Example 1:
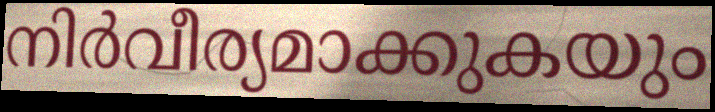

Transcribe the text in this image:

നിർവീര്യമാക്കുകയും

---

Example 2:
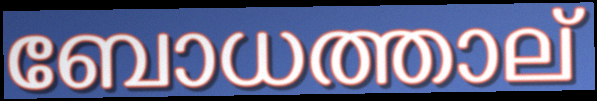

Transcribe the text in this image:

ബോധത്താല്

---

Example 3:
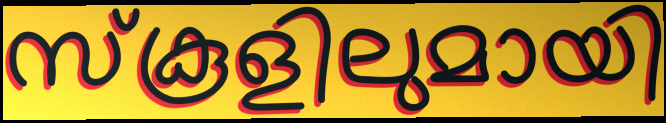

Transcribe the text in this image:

സ്കൂളിലുമായി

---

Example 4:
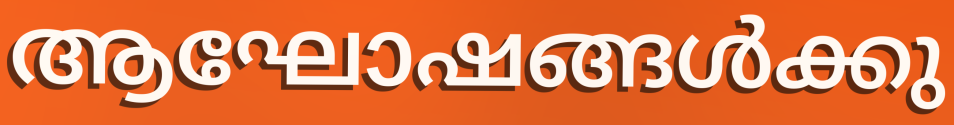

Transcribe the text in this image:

ആഘോഷങ്ങൾക്കു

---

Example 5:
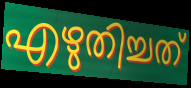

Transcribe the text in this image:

എഴുതിച്ചത്